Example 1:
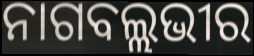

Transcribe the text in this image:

ନାଗବଲ୍ଲଭୀର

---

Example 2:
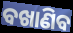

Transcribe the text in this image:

ବଖାଣିବ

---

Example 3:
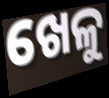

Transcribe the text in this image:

ଖେଳୁ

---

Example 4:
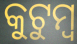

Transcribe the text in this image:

କୁଟୁମ୍ୱ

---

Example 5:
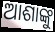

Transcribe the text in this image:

ଆଶାଙ୍କୁ